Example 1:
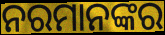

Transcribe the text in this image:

ନରମାନଙ୍କର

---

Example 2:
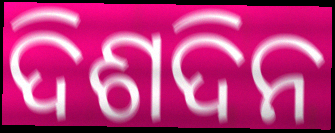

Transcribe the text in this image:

ଦିଶଦିନ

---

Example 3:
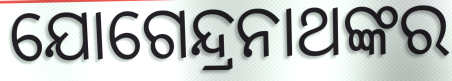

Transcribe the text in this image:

ଯୋଗେନ୍ଦ୍ରନାଥଙ୍କର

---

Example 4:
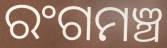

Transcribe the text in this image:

ରଂଗମଞ୍ଚ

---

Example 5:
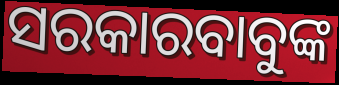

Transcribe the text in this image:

ସରକାରବାବୁଙ୍କ